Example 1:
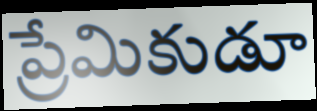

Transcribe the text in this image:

ప్రేమికుడూ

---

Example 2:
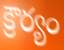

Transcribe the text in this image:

క్రౌర్యం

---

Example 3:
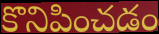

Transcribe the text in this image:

కొనిపించడం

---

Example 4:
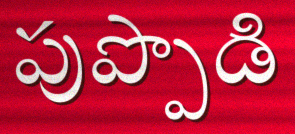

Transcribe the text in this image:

పుప్పొడి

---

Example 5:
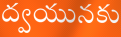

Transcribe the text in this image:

ద్వయునకు